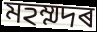
মহম্মদৰ